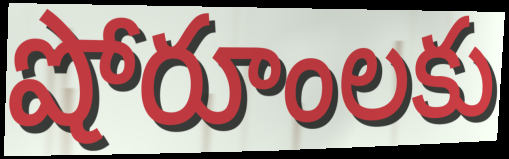
షోరూంలకు